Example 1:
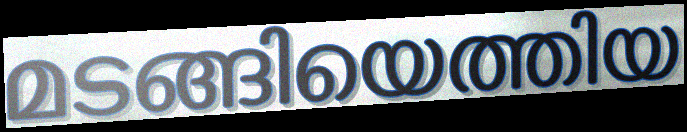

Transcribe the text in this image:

മടങ്ങിയെത്തിയ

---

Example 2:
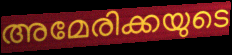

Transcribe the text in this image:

അമേരിക്കയുടെ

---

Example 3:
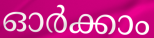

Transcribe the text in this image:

ഓർക്കാം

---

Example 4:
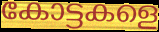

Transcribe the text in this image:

കോട്ടകളെ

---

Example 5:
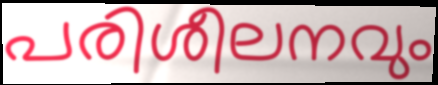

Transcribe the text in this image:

പരിശീലനവും